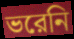
ভরেনি